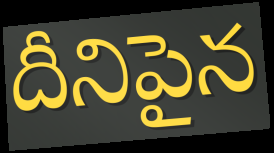
దీనిపైన